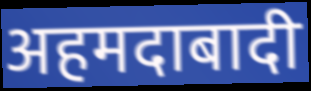
अहमदाबादी